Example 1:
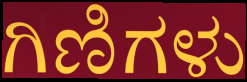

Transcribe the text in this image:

ಗಿಣಿಗಳು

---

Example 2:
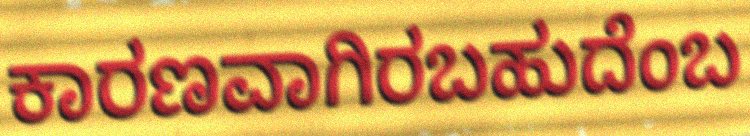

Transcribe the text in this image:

ಕಾರಣವಾಗಿರಬಹುದೆಂಬ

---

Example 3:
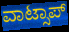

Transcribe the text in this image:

ವಾಟ್ಸಾಪ್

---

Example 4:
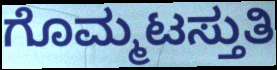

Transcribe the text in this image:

ಗೊಮ್ಮಟಸ್ತುತಿ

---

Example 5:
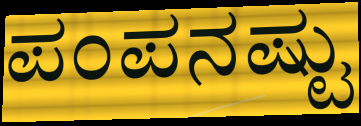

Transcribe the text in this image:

ಪಂಪನಷ್ಟು